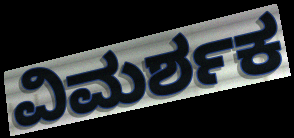
ವಿಮರ್ಶಕ